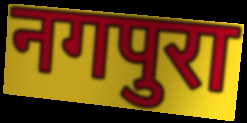
नगपुरा